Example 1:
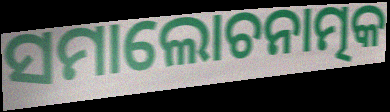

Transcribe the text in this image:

ସମାଲୋଚନାତ୍ମକ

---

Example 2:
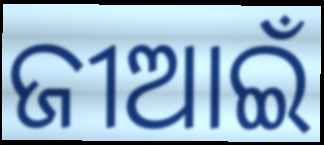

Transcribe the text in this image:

ଜୀଆଇଁ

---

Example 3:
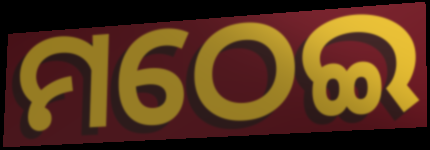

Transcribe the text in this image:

ମଠେଇ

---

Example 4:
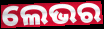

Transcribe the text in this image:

ଲେଭର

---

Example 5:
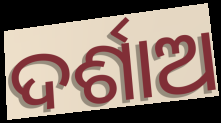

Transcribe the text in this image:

ଦର୍ଶାଅ